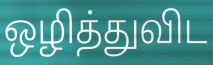
ஒழித்துவிட